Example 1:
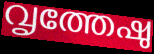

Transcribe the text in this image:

വൃത്തേഷു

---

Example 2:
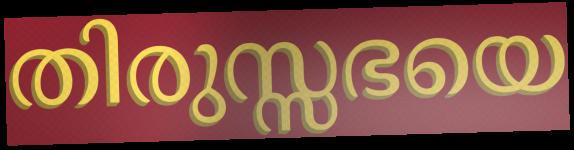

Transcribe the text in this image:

തിരുസ്സഭയെ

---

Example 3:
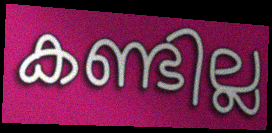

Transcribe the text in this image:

കണ്ടില്ല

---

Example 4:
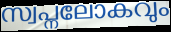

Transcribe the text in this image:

സ്വപ്നലോകവും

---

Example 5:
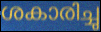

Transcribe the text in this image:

ശകാരിച്ചു